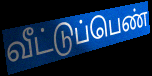
வீட்டுப்பெண்